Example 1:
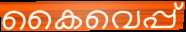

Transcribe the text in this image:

കൈവെപ്പ്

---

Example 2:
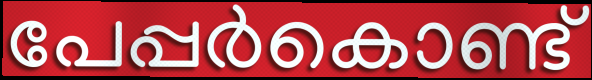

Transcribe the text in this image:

പേപ്പർകൊണ്ട്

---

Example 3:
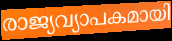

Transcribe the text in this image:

രാജ്യവ്യാപകമായി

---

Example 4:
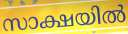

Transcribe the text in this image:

സാക്ഷയിൽ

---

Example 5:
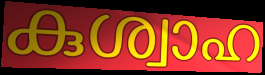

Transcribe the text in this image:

കുശ്വാഹ